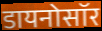
डायनोसॉर